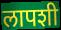
लापशी